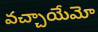
వచ్చాయేమో